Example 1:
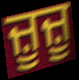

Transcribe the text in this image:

ਜ਼ੂਜ਼ੂ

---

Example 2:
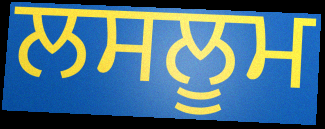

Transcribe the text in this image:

ਲਸਲੂਮ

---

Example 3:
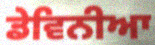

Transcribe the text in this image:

ਡੇਵਿਨੀਆ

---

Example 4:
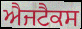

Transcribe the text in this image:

ਐਜਟੈਕਸ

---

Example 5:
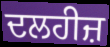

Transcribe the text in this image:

ਦਲਹੀਜ਼